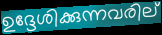
ഉദ്ദേശിക്കുന്നവരില്